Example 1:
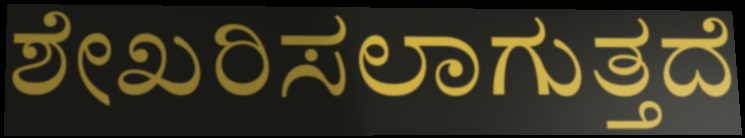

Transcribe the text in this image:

ಶೇಖರಿಸಲಾಗುತ್ತದೆ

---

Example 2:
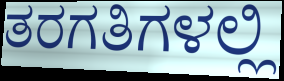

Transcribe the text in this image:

ತರಗತಿಗಳಲ್ಲಿ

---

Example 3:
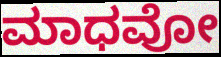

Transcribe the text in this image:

ಮಾಧವೋ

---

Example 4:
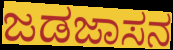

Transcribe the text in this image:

ಜಡಜಾಸನ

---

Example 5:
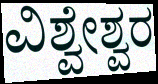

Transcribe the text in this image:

ವಿಶ್ವೇಶ್ವರ